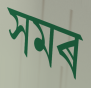
সমৰ